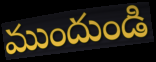
ముందుండి